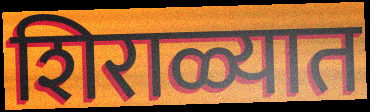
शिराळ्यात